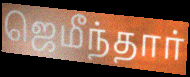
ஜெமீந்தார்